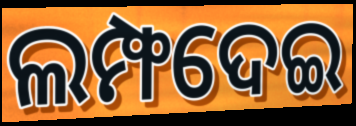
ଲମ୍ଫଦେଇ